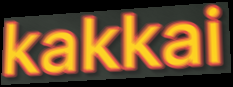
kakkai